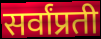
सर्वांप्रती